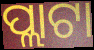
ପ୍ଲାଟା